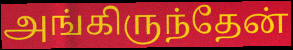
அங்கிருந்தேன்